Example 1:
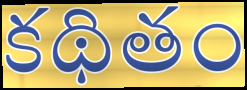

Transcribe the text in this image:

కథితం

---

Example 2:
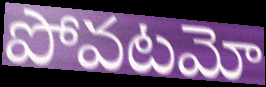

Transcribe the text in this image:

పోవటమో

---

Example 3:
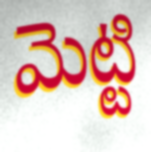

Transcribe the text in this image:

మెట్టి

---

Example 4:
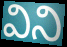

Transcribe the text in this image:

విని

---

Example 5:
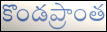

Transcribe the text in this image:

కొండప్రాంత